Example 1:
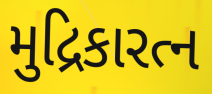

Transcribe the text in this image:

મુદ્રિકારત્ન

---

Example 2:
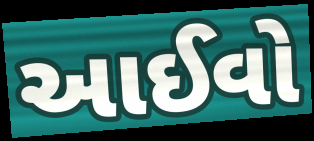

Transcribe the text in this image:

આઈવો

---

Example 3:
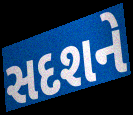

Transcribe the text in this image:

સદશને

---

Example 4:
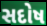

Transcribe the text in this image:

સદોષ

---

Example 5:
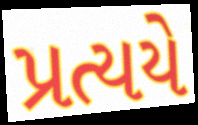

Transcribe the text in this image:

પ્રત્યયે